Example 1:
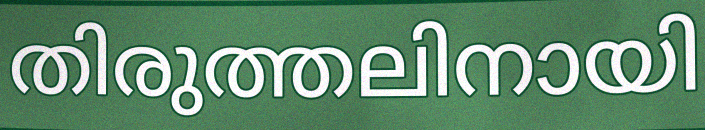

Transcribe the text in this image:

തിരുത്തലിനായി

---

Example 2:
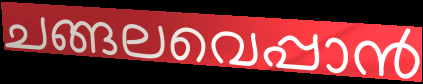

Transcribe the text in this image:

ചങ്ങലവെപ്പാൻ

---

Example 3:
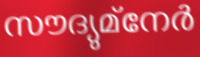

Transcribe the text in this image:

സൗദ്യുമ്നേർ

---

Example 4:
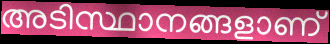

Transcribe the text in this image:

അടിസ്ഥാനങ്ങളാണ്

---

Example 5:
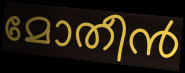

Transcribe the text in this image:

മോതീൻ